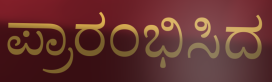
ಪ್ರಾರಂಭಿಸಿದ